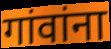
गांवांना